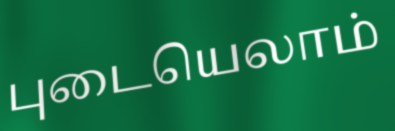
புடையெலாம்